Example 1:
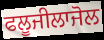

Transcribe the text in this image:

ਫਲੂਜੀਲਾਜੋਲ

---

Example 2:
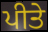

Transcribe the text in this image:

ਪੀਤੇ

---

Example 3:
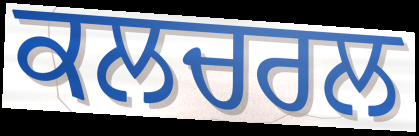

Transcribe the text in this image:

ਕਲਚਰਲ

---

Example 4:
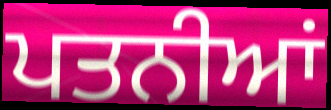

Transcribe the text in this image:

ਪਤਨੀਆਂ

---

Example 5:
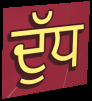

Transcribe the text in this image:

ਦੁੱਧ